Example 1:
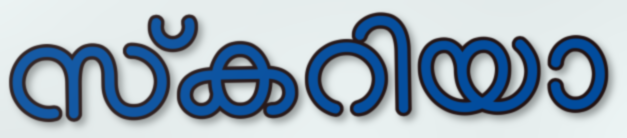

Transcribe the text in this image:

സ്‌കറിയാ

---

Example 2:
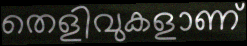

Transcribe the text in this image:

തെളിവുകളാണ്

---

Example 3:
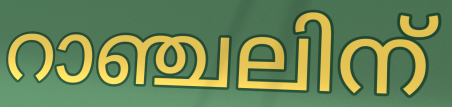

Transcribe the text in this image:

റാഞ്ചലിന്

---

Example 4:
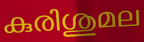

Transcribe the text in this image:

കുരിശുമല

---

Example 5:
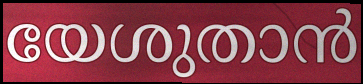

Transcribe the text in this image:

യേശുതാൻ